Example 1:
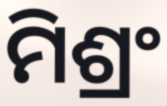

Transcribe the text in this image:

ମିଶ୍ରଂ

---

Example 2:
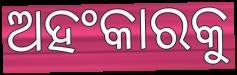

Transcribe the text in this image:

ଅହଂକାରକୁ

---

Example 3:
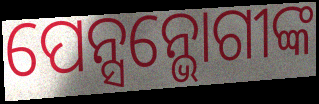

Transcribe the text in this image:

ପେନ୍ସନ୍ଭୋଗୀଙ୍କ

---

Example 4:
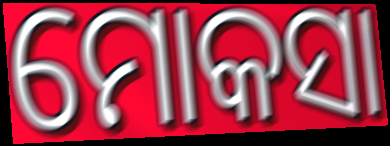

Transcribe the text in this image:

ମୋକସା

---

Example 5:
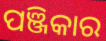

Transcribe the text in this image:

ପଞ୍ଜିକାର